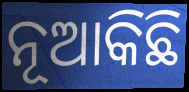
ନୂଆକିଛି